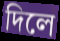
দিলে